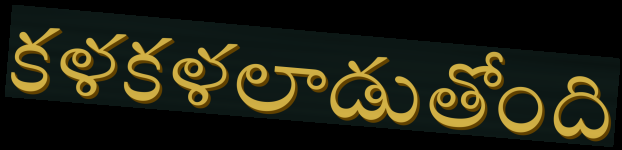
కళకళలాడుతోంది